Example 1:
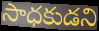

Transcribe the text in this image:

సాధకుడని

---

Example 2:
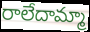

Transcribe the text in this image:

రాలేదామ్మా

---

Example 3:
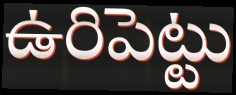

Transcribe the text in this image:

ఉరిపెట్టు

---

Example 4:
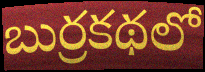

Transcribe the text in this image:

బుర్రకథలో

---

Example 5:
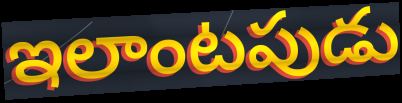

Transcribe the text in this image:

ఇలాంటపుడు